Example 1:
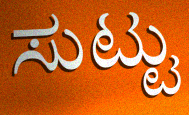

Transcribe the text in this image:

ಸುಟ್ಟು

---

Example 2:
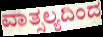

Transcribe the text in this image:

ವಾತ್ಸಲ್ಯದಿಂದ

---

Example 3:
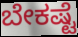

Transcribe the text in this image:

ಬೇಕಷ್ಟೆ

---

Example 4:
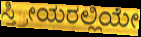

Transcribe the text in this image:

ಸ್ತ್ರೀಯರಲ್ಲಿಯೇ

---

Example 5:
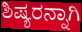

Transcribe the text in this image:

ಶಿಷ್ಯರನ್ನಾಗಿ